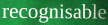
recognisable